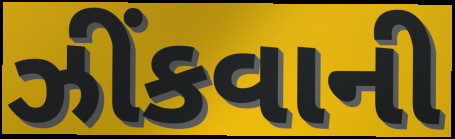
ઝીંકવાની